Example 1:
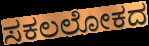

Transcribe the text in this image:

ಸಕಲಲೋಕದ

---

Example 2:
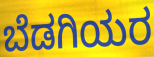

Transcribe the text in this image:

ಬೆಡಗಿಯರ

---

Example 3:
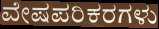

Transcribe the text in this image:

ವೇಷಪರಿಕರಗಳು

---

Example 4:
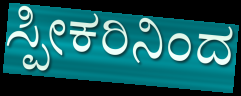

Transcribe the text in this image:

ಸ್ಪೀಕರಿನಿಂದ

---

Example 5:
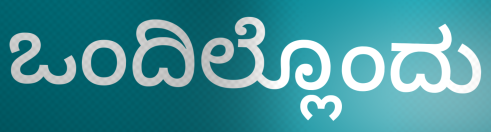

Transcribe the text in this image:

ಒಂದಿಲ್ಲೊಂದು